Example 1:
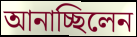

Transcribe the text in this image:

আনাচ্ছিলেন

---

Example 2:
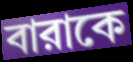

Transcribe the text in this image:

বারাকে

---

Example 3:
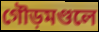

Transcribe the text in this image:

গৌড়মণ্ডলে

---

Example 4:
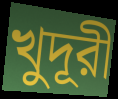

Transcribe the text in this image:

খুদূরী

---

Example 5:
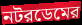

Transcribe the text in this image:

নটরডেমের